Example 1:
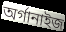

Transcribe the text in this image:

অর্গানাইজ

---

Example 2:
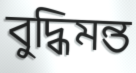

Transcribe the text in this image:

বুদ্ধিমন্ত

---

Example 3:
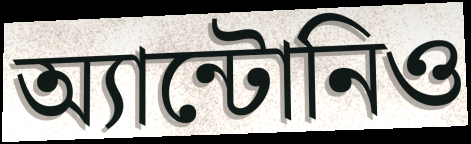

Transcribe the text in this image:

অ্যান্টোনিও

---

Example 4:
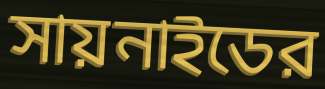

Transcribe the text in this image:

সায়নাইডের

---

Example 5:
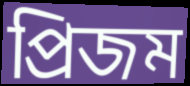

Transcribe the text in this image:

প্রিজম